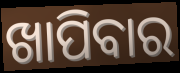
ଖାପିବାର